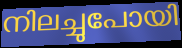
നിലച്ചുപോയി